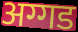
अग्गड